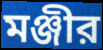
মঞ্জীর